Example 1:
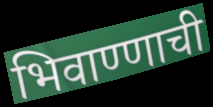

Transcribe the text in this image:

भिवाण्णाची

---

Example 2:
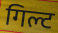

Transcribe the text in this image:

गिल्ट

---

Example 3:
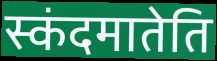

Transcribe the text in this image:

स्कंदमातेति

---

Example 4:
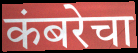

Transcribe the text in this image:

कंबरेचा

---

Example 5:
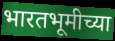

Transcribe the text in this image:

भारतभूमीच्या